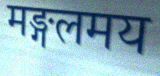
मङ्गलमय